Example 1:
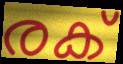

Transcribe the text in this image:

രക്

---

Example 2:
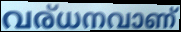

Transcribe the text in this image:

വര്ധനവാണ്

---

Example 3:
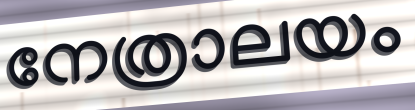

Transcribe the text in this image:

നേത്രാലയം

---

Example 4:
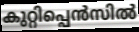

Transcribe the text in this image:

കുറ്റിപ്പെൻസിൽ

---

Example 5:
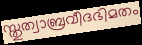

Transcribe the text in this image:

സ്തുത്വാബ്രവീദഭിമതം